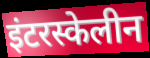
इंटरस्केलीन